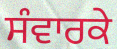
ਸੰਵਾਰਕੇ